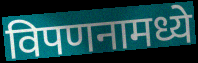
विपणनामध्ये